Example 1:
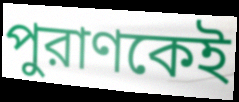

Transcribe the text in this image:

পুরাণকেই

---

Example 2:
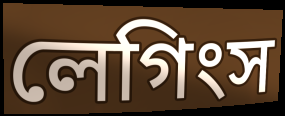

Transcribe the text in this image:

লেগিংস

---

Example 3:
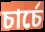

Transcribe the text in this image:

চার্চে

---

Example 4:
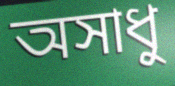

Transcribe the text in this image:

অসাধু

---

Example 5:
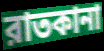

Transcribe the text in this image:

রাতকানা